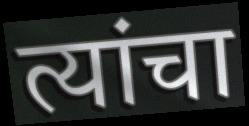
त्यांचा